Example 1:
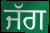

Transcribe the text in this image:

ਜੱਗ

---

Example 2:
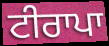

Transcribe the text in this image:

ਟੀਰਾਪਾ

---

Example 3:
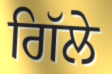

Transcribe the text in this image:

ਗਿੱਲੇ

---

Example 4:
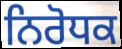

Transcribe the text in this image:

ਨਿਰੋਧਕ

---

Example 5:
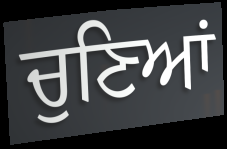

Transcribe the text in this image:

ਚੁਣਿਆਂ